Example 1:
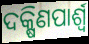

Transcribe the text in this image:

ଦକ୍ଷିଣପାର୍ଶ୍ବ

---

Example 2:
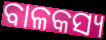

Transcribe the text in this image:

ବାଳକସ୍ୟ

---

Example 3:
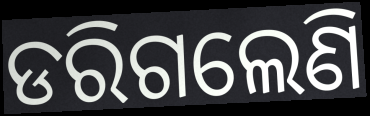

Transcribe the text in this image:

ଡରିଗଲେଣି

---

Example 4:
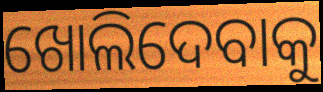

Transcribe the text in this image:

ଖୋଲିଦେବାକୁ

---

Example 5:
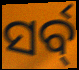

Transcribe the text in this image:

ସର୍ବ୍